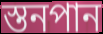
স্তনপান